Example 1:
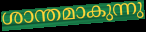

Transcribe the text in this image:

ശാന്തമാകുന്നു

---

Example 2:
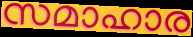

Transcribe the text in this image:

സമാഹാര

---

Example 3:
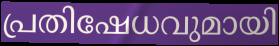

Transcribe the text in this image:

പ്രതിഷേധവുമായി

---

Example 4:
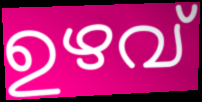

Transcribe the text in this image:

ഉഴവ്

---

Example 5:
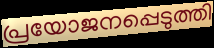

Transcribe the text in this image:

പ്രയോജനപ്പെടുത്തി